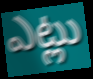
ఎట్లు